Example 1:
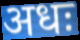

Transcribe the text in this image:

अधः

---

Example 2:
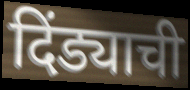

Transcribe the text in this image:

दिंड्याची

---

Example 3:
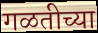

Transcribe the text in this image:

गळतीच्या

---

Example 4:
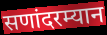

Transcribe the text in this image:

सणांदरम्यान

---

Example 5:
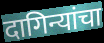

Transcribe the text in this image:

दागिन्यांचा